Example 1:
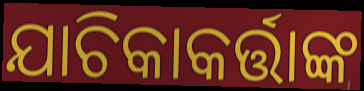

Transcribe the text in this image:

ଯାଚିକାକର୍ତ୍ତାଙ୍କ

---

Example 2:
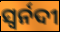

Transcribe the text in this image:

ସ୍ୱର୍ନଦୀ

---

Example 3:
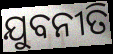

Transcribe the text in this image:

ଯୁବନୀତି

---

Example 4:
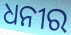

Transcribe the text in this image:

ଧନୀର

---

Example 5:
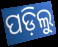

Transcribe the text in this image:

ପଡ଼ିଲୁ